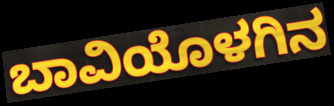
ಬಾವಿಯೊಳಗಿನ